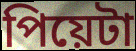
পিয়েটা